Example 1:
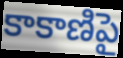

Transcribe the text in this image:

కాకాణిపై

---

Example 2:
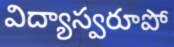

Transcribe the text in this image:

విద్యాస్వరూపో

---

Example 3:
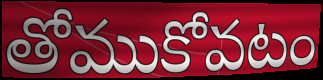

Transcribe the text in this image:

తోముకోవటం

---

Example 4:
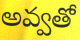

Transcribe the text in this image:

అవ్వతో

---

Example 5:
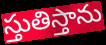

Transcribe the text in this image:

స్తుతిస్తాను